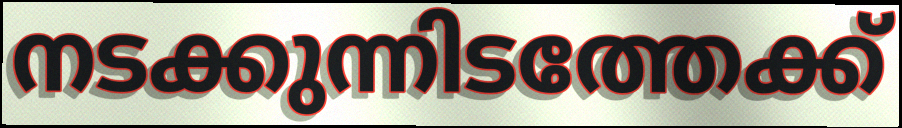
നടക്കുന്നിടത്തേക്ക്